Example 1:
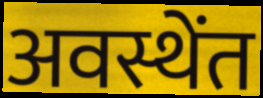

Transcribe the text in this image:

अवस्थेंत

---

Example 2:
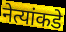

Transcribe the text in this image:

नेत्यांकडे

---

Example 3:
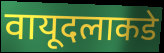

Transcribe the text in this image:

वायूदलाकडे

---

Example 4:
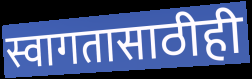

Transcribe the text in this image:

स्वागतासाठीही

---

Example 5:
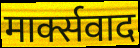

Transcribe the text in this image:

मार्क्सवाद